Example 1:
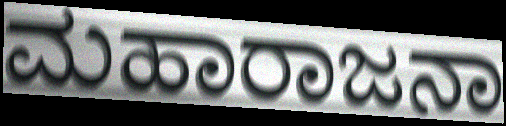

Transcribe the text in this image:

ಮಹಾರಾಜನಾ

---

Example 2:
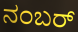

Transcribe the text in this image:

ನಂಬರ್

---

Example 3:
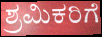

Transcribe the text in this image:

ಶ್ರಮಿಕರಿಗೆ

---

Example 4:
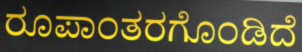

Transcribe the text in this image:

ರೂಪಾಂತರಗೊಂಡಿದೆ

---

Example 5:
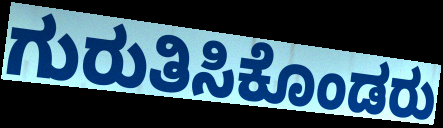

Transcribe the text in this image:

ಗುರುತಿಸಿಕೊಂಡರು